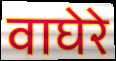
वाघेरे